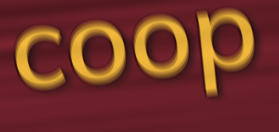
coop